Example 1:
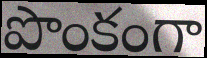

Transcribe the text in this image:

పొంకంగా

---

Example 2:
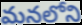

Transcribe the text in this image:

మనలోని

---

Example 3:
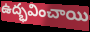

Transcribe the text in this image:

ఉద్భవించాయి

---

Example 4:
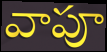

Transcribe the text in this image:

వాపూ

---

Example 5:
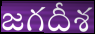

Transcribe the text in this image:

జగదీశ